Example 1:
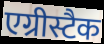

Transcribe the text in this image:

एग्रीस्टैक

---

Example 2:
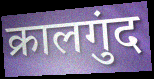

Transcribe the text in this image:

क्रालगुंद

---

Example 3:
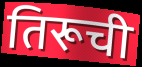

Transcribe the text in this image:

तिरूची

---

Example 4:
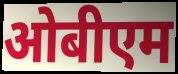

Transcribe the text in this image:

ओबीएम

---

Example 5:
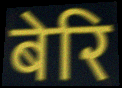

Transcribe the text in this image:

बेरि